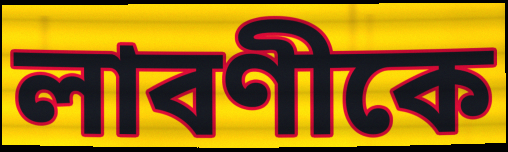
লাবণীকে